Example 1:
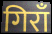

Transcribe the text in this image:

गिराँ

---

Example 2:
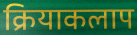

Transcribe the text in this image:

क्रियाकलाप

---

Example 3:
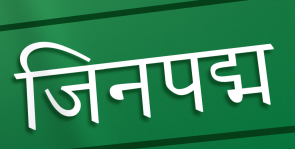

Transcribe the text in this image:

जिनपद्म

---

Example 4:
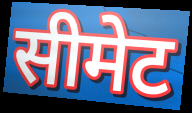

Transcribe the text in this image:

सीमेट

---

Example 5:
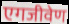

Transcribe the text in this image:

एगजीवेण